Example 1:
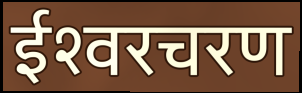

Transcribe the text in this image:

ईश्वरचरण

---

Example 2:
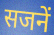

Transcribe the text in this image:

सजनें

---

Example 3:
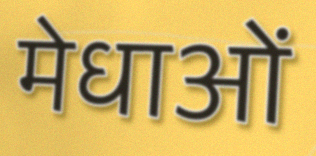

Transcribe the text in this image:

मेधाओं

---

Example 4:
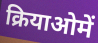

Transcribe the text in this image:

क्रियाओमें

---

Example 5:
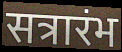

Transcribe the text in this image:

सत्रारंभ